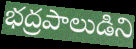
భద్రపాలుడిని